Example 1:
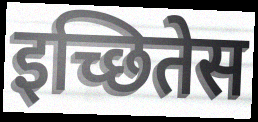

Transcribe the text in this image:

इच्छितेस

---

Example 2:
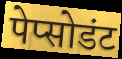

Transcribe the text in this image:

पेप्सोडंट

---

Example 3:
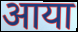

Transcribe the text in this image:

आया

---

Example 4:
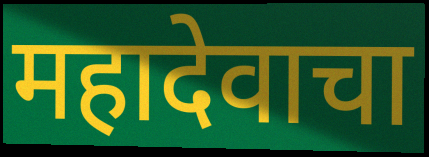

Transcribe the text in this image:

महादेवाचा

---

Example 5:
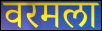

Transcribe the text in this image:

वरमला